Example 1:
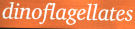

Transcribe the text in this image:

dinoflagellates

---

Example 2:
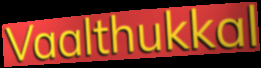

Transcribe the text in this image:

Vaalthukkal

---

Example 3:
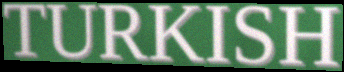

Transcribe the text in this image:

TURKISH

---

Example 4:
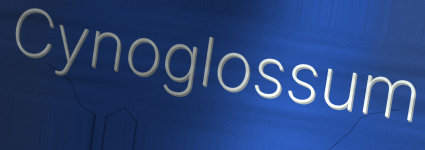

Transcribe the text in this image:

Cynoglossum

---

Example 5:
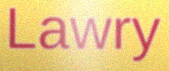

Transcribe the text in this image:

Lawry